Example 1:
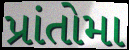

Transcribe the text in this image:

પ્રાંતોમા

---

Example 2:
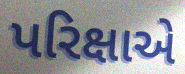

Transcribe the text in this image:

પરિક્ષાએ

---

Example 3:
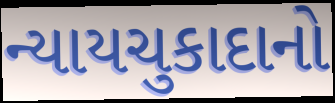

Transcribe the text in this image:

ન્યાયચુકાદાનો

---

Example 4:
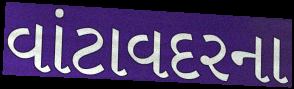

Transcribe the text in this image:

વાંટાવદરના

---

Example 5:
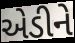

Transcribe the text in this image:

એડીને